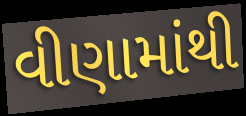
વીણામાંથી